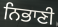
ਨਿਭਾਣੀ